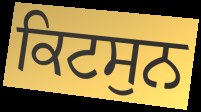
ਕਿਟਸੁਨ